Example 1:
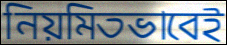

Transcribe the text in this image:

নিয়মিতভাবেই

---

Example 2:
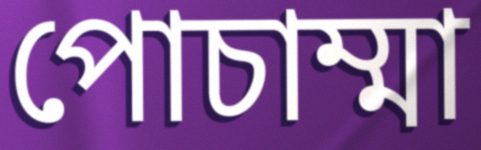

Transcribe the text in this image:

পোচাম্মা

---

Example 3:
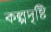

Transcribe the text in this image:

কল্পদৃষ্টি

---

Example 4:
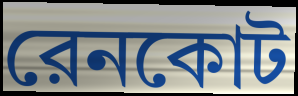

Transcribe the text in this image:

রেনকোট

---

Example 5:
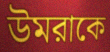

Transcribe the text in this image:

উমরাকে